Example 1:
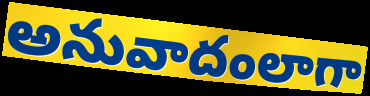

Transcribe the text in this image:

అనువాదంలాగా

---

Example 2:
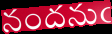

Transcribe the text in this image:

నందనుఁ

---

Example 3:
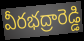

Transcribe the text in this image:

వీరభద్రారెడ్డి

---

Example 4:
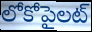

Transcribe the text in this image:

లోకోపైలట్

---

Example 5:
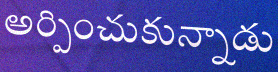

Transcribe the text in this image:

అర్పించుకున్నాడు